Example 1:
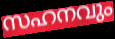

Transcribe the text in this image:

സഹനവും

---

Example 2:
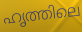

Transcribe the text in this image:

ഹൃത്തിലെ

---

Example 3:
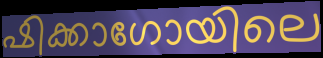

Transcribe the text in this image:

ഷിക്കാഗോയിലെ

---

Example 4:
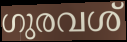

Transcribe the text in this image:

ഗുരവശ്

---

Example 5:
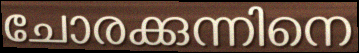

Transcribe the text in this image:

ചോരക്കുന്നിനെ